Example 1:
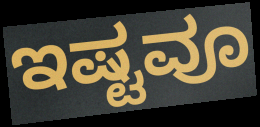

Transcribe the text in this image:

ಇಷ್ಟವೂ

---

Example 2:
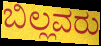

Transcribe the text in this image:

ಬಿಲ್ಲವರು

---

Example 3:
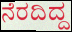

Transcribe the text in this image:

ನೆರದಿದ್ದ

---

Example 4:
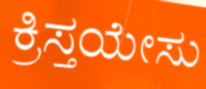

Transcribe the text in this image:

ಕ್ರಿಸ್ತಯೇಸು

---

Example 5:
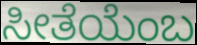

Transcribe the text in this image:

ಸೀತೆಯೆಂಬ